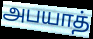
அபயாத்